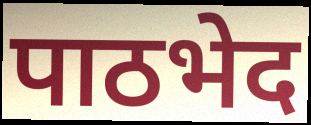
पाठभेद